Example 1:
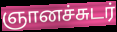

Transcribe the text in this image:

ஞானச்சுடர்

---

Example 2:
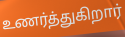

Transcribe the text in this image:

உணர்த்துகிறார்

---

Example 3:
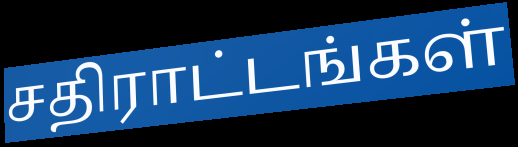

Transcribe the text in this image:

சதிராட்டங்கள்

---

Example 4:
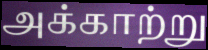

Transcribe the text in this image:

அக்காற்று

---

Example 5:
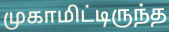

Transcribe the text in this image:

முகாமிட்டிருந்த